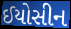
ઈયોસીન